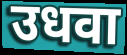
उधवा